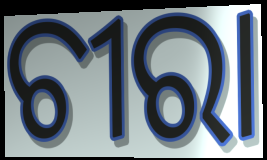
ଚୀରା